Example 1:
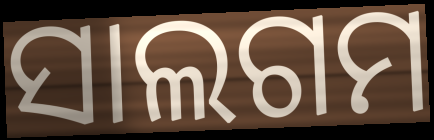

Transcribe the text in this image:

ସାଲଗମ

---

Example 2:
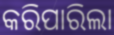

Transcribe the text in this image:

କରିପାରିଲା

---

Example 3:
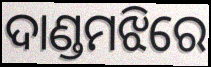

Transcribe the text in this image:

ଦାଣ୍ଡମଝିରେ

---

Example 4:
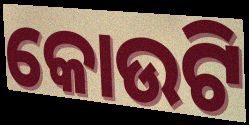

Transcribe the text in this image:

କୋଉଟି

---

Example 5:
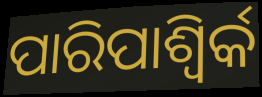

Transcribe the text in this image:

ପାରିପାଶ୍ୱିର୍କ